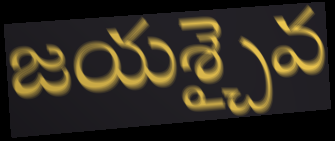
జయశ్చైవ